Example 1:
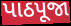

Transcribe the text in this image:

પાઠપૂજા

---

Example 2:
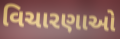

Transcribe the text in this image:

વિચારણાઓ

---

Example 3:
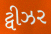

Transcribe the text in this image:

ટ્વીઝર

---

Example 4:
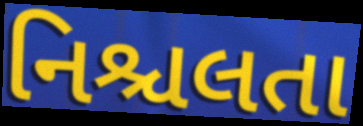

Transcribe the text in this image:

નિશ્ચલતા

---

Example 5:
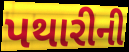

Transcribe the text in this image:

પથારીની